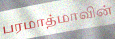
பரமாத்மாவின்